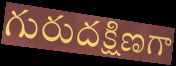
గురుదక్షిణగా